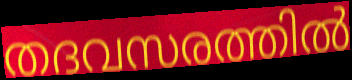
തദവസരത്തിൽ